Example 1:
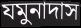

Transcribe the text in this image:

যমুনাদাস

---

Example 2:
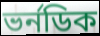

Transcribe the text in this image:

ভর্নডিক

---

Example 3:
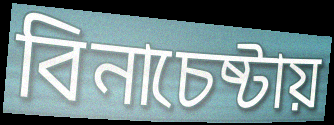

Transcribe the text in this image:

বিনাচেষ্টায়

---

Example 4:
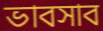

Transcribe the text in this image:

ভাবসাব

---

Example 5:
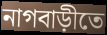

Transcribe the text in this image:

নাগবাড়ীতে